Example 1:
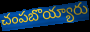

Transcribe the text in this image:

చంపబొయ్యారు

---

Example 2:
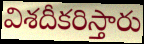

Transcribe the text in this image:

విశదీకరిస్తారు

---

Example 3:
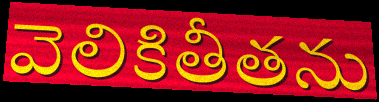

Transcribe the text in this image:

వెలికితీతను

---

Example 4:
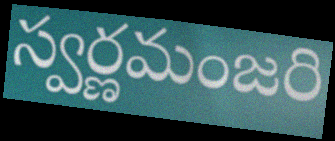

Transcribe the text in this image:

స్వర్ణమంజరి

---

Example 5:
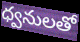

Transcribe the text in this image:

ధ్వనులతో